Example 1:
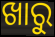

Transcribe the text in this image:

ଖାରୁ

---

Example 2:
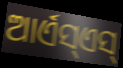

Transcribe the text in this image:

ଆର୍ଏସ୍ଏସ୍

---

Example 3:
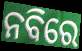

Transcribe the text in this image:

ନବିରେ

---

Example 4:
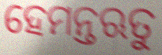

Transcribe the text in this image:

ହେମନ୍ତଋତୁ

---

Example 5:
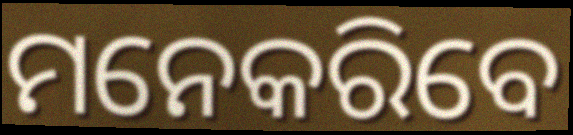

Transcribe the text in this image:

ମନେକରିବେ